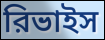
রিভাইস